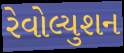
રેવોલ્યુશન